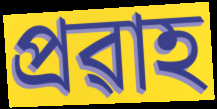
প্ৰৱাহ